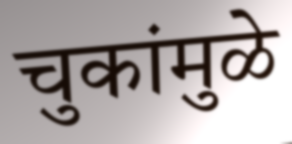
चुकांमुळे